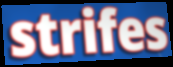
strifes